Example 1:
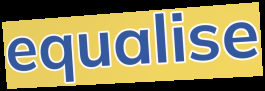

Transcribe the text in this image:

equalise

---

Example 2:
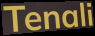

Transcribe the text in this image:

Tenali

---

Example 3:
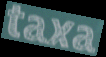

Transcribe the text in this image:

taxa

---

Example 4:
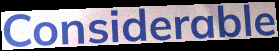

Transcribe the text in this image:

Considerable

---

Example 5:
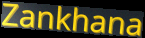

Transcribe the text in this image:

Zankhana